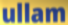
ullam